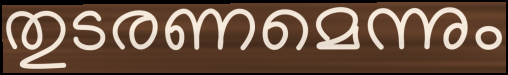
തുടരണമെന്നും